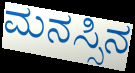
ಮನಸ್ಸಿನ